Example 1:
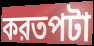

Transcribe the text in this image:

করতপটা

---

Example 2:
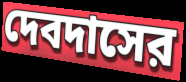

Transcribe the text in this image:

দেবদাসের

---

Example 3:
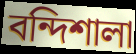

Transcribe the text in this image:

বন্দিশালা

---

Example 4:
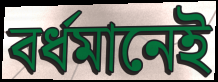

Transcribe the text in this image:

বর্ধমানেই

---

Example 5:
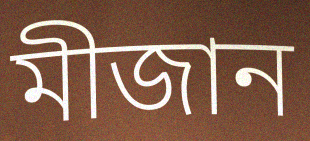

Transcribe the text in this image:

মীজান